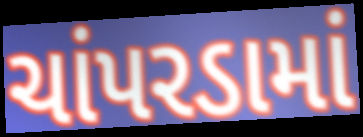
ચાંપરડામાં